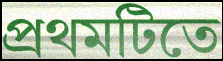
প্রথমটিতে